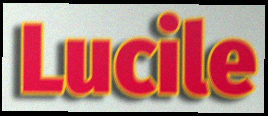
Lucile